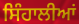
ਸਿੰਹਾਲੀਆਂ